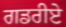
ਗਡਰੀਏ